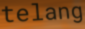
telang